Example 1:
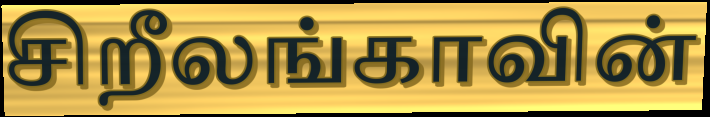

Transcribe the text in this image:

சிறீலங்காவின்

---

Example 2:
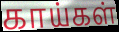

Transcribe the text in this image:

காய்கள்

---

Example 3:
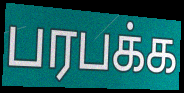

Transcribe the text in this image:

பரபக்க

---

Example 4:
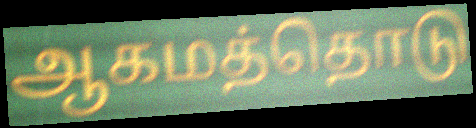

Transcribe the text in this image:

ஆகமத்தொடு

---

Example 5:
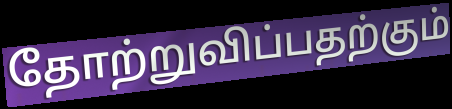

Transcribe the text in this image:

தோற்றுவிப்பதற்கும்